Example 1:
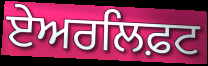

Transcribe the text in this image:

ਏਅਰਲਿਫ਼ਟ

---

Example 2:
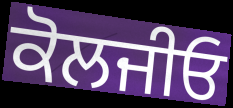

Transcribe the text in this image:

ਕੋਲਜੀਓ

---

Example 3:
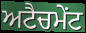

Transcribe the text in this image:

ਅਟੈਚਮੇਂਟ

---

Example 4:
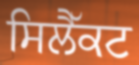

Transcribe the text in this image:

ਸਿਲੈੱਕਟ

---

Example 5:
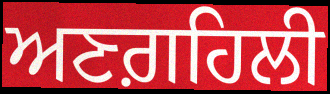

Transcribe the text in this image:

ਅਣਗ਼ਹਿਲੀ